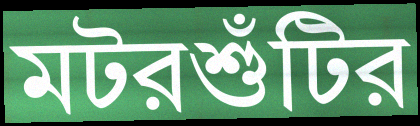
মটরশুঁটির